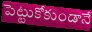
పెట్టుకోకుండానే